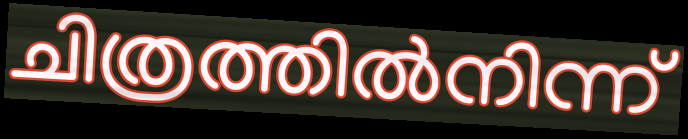
ചിത്രത്തിൽനിന്ന്